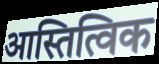
आस्तित्विक